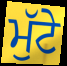
ਮੁੱਟੇ